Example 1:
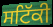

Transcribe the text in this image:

ਸਟਿੱਕੀ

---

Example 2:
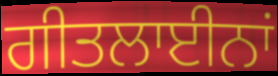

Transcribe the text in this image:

ਗੀਤਲਾਈਨਾਂ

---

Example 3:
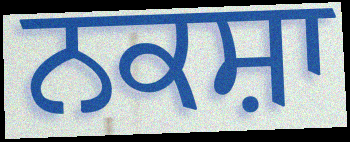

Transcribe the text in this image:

ਨਕਸ਼ਾ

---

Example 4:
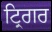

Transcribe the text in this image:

ਟ੍ਰਿਗਰ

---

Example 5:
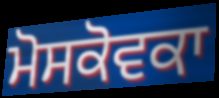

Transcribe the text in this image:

ਮੋਸਕੋਵਕਾ